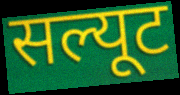
सल्यूट